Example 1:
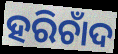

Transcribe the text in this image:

ହରିଚାଁଦ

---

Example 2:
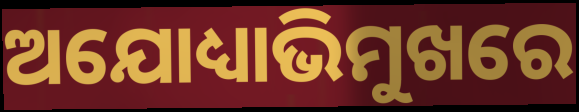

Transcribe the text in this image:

ଅଯୋଧ୍ୟାଭିମୁଖରେ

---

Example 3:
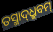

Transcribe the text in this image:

ତସ୍ମାଦ୍‌ଧ୍ରୁବମ୍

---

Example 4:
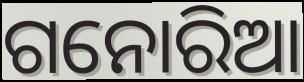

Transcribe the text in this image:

ଗନୋରିଆ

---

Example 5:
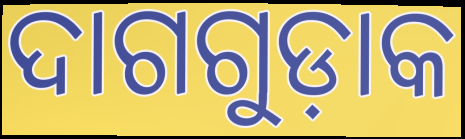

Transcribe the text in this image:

ଦାଗଗୁଡ଼ାକ